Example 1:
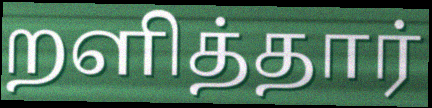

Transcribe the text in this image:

றளித்தார்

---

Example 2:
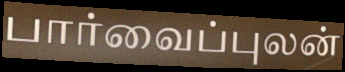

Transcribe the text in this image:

பார்வைப்புலன்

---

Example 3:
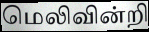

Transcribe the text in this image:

மெலிவின்றி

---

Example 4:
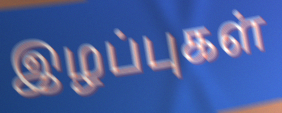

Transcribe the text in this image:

இழப்புகள்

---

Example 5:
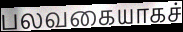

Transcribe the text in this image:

பலவகையாகச்